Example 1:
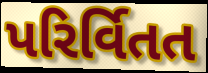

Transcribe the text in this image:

પરિર્વિતત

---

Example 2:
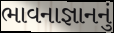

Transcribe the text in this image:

ભાવનાજ્ઞાનનું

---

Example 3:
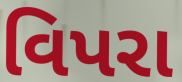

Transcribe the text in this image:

વિપરા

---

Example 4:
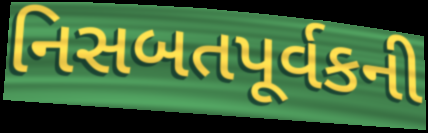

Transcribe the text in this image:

નિસબતપૂર્વકની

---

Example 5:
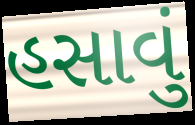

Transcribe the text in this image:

હસાવું